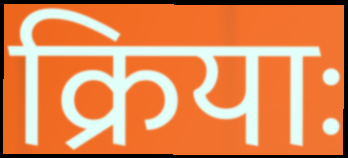
क्रियाः